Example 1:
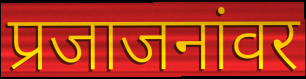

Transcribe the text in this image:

प्रजाजनांवर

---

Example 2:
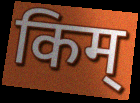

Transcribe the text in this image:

किम्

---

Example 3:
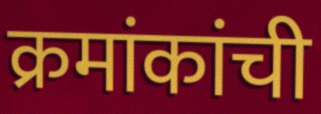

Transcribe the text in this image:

क्रमांकांची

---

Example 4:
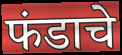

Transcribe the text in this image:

फंडाचे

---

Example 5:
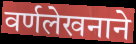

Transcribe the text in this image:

वर्णलेखनाने